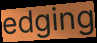
edging